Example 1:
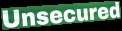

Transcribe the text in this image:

Unsecured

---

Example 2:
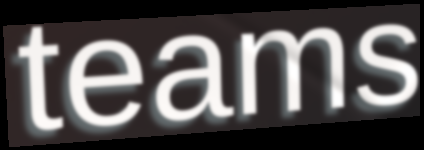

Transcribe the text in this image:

teams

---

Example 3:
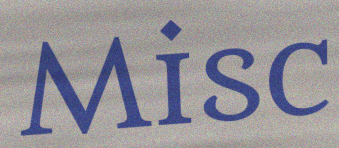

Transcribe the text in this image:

Misc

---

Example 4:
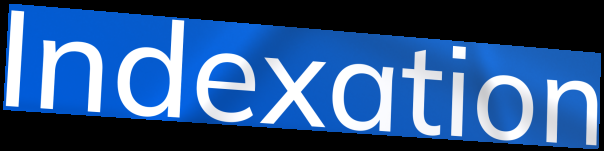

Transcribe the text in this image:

Indexation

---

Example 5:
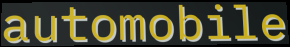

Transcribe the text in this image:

automobile